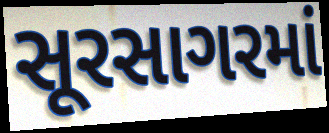
સૂરસાગરમાં